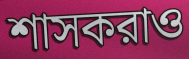
শাসকরাও